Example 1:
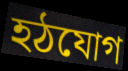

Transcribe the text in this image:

হঠযোগ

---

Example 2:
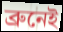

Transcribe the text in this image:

ব্রুনেই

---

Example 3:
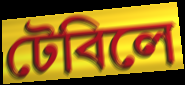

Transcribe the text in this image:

টেবিলে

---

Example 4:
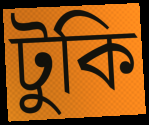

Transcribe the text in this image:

টুকি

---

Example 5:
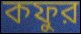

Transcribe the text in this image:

কফুর